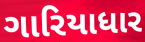
ગારિયાધાર